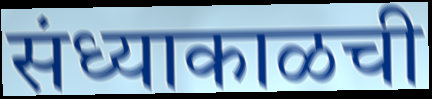
संध्याकाळची